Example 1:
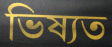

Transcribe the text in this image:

ভিষ্যত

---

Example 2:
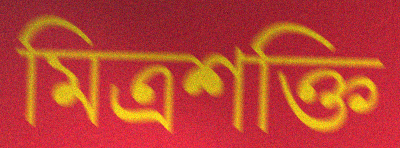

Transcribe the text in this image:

মিত্ৰশক্তি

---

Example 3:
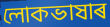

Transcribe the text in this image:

লোকভাষাৰ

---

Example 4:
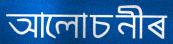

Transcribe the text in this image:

আলোচনীৰ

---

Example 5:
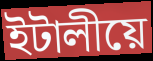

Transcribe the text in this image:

ইটালীয়ে